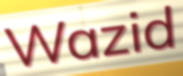
Wazid